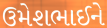
ઉમેશભાઈને